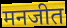
मनजीत